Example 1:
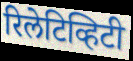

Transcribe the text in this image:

रिलेटिव्हिटी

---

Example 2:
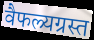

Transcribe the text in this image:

वैफल्यग्रस्त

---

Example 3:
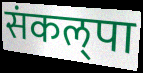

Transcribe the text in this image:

संकल्पा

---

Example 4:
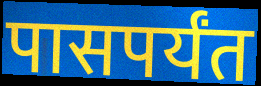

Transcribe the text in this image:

पासपर्यंत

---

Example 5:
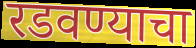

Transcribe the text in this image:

रडवण्याचा